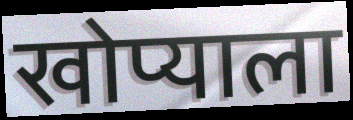
खोप्याला